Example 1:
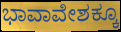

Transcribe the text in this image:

ಭಾವಾವೇಶಕ್ಕೂ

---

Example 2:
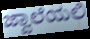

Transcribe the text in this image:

ಜ್ವಾಲೆಯಲಿ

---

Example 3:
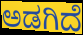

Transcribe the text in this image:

ಅಡಗಿದೆ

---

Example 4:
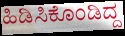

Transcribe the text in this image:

ಹಿಡಿಸಿಕೊಂಡಿದ್ದ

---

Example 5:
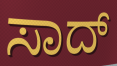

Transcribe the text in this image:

ಸಾದ್